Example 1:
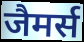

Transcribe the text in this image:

जैमर्स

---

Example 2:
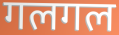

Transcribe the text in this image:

गलगल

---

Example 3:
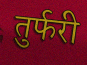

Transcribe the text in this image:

तुर्फरी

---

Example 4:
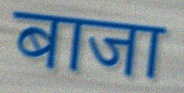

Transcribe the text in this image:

बाजा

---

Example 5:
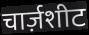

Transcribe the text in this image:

चार्ज़शीट